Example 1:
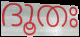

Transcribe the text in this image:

ദൂതഃ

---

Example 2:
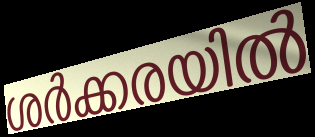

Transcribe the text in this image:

ശർക്കരയിൽ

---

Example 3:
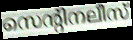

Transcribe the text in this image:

സെന്റിനലീസ്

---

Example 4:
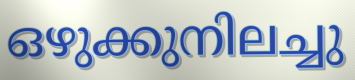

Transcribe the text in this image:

ഒഴുക്കുനിലച്ചു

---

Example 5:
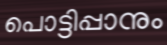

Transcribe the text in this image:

പൊട്ടിപ്പാനും